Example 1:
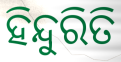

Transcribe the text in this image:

ହିନ୍ଦୁରିତି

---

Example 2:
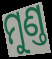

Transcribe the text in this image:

ମୁଣ୍ତ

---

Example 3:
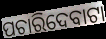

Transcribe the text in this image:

ପଚାରିଦେବାଟା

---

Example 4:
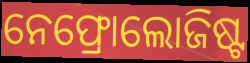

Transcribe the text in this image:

ନେଫ୍ରୋଲୋଜିଷ୍ଟ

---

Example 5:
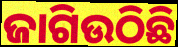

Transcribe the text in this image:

ଜାଗିଉଠିଛି